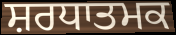
ਸ਼ਰਧਾਤਮਕ